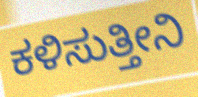
ಕಳಿಸುತ್ತೀನಿ